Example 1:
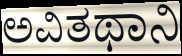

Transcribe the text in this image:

ಅವಿತಥಾನಿ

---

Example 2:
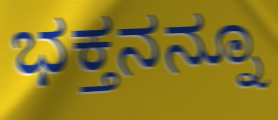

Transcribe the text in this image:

ಭಕ್ತನನ್ನೂ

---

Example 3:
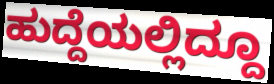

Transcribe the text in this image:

ಹುದ್ದೆಯಲ್ಲಿದ್ದೂ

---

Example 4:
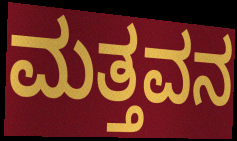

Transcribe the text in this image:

ಮತ್ತವನ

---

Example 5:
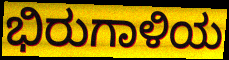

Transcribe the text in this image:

ಭಿರುಗಾಳಿಯ